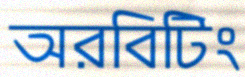
অরবিটিং